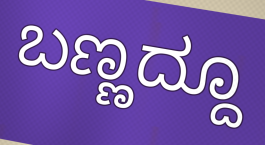
ಬಣ್ಣದ್ದೂ